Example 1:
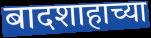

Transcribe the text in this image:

बादशाहाच्या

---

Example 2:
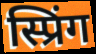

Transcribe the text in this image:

स्प्रिंग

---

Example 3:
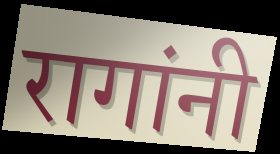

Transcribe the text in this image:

रागांनी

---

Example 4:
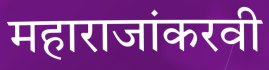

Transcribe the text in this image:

महाराजांकरवी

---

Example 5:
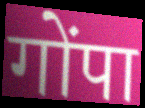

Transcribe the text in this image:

गोंपा